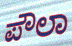
ಪೌಲಾ